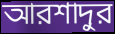
আরশাদুর